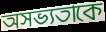
অসভ্যতাকে